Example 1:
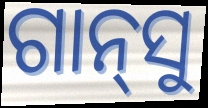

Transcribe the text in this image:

ଗାନ୍‍ସୁ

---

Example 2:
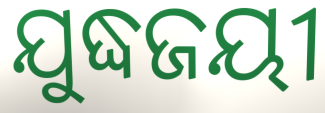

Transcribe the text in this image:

ଯୁଦ୍ଧଜୟୀ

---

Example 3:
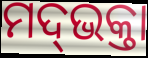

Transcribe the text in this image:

ମଦ୍‌ଭକ୍ତା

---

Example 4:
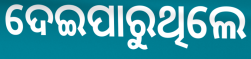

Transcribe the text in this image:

ଦେଇପାରୁଥିଲେ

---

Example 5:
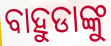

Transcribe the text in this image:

ବାହୁଡାଙ୍କୁ